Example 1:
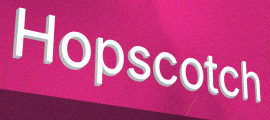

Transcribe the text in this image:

Hopscotch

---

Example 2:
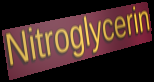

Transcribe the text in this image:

Nitroglycerin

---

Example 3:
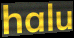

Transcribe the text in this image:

halu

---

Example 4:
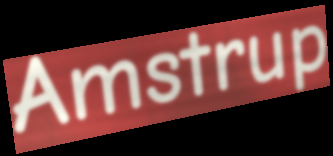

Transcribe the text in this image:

Amstrup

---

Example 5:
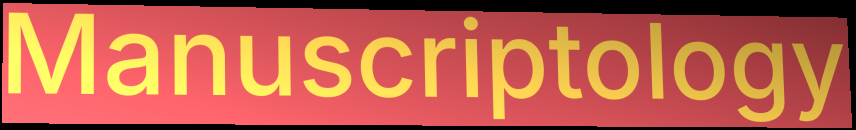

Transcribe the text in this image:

Manuscriptology